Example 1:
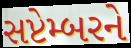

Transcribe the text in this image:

સપ્ટેમ્બરને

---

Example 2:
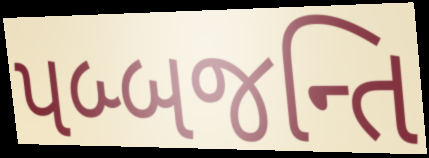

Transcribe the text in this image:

પબ્બજન્તિ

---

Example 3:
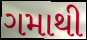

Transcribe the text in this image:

ગમાથી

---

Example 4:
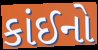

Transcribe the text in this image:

કાંઈનો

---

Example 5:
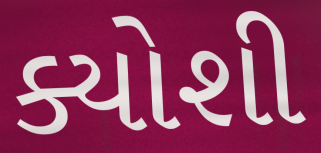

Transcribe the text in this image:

ક્યોશી